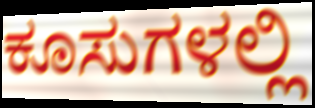
ಕೂಸುಗಳಲ್ಲಿ